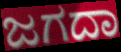
ಜಗದಾ